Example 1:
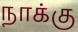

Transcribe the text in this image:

நாக்கு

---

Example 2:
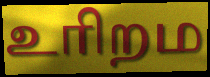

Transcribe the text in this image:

உரிறம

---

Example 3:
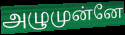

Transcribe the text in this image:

அழுமுன்னே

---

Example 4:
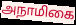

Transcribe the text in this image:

அநாமிகை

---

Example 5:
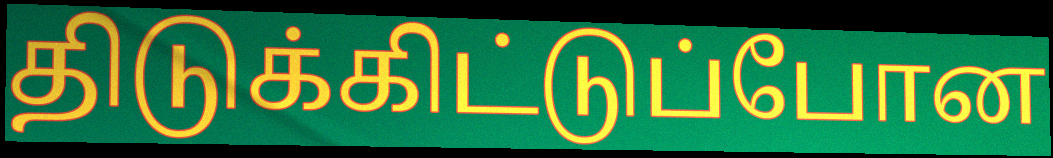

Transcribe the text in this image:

திடுக்கிட்டுப்போன